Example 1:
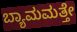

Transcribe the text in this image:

ಬ್ಯಾಮಮತ್ತೇ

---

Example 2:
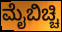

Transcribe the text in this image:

ಮೈಬಿಚ್ಚಿ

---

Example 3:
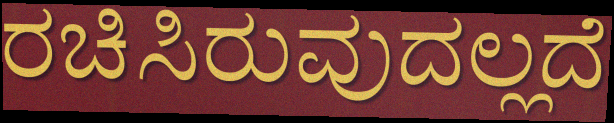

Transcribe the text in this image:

ರಚಿಸಿರುವುದಲ್ಲದೆ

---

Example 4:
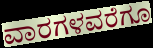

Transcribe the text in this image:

ವಾರಗಳವರೆಗೂ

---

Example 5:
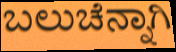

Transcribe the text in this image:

ಬಲುಚೆನ್ನಾಗಿ